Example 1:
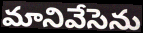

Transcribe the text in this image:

మానివేసెను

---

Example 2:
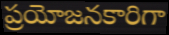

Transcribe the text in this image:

ప్రయోజనకారిగా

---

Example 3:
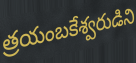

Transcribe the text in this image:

త్రయంబకేశ్వరుడిని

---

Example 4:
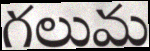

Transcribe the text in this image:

గలుమ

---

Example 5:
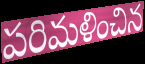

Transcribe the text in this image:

పరిమళించిన